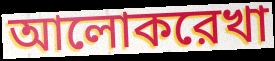
আলোকরেখা